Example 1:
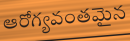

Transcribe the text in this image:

ఆరోగ్యవంతమైన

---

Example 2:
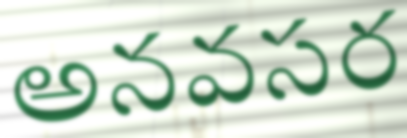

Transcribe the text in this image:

అనవసర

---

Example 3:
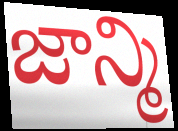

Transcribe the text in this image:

జాన్మి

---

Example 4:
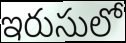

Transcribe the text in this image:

ఇరుసులో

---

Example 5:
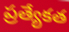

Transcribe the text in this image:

ప్రత్యేకత